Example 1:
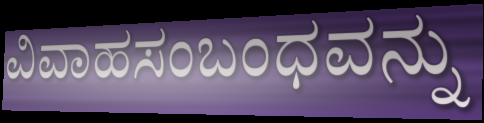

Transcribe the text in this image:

ವಿವಾಹಸಂಬಂಧವನ್ನು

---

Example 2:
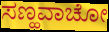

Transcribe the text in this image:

ಸಣ್ಹವಾಚೋ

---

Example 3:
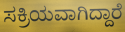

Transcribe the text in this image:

ಸಕ್ರಿಯವಾಗಿದ್ದಾರೆ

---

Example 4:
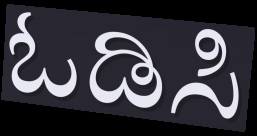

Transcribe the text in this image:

ಓಡಿಸಿ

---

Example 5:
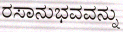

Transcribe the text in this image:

ರಸಾನುಭವವನ್ನು